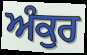
ਅੰਕੁਰ